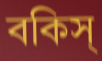
বকিস্